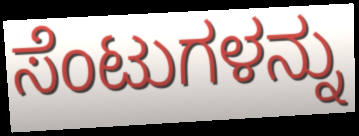
ಸೆಂಟುಗಳನ್ನು